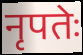
नृपतेः